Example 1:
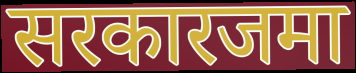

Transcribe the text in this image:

सरकारजमा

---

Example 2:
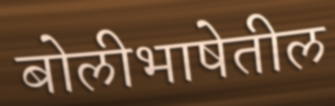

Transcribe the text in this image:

बोलीभाषेतील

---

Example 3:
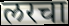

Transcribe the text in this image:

लरचा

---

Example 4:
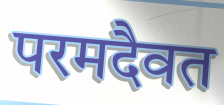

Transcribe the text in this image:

परमदैवत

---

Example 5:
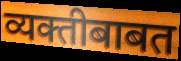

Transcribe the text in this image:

व्यक्तीबाबत